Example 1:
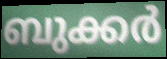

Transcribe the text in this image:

ബുക്കർ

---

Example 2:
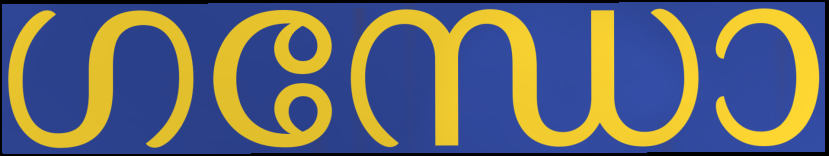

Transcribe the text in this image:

ഗന്ധോ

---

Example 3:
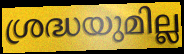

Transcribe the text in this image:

ശ്രദ്ധയുമില്ല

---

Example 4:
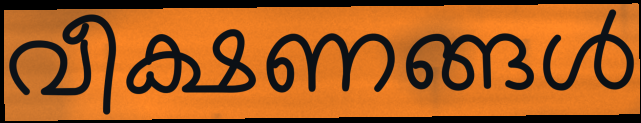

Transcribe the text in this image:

വീക്ഷണങ്ങൾ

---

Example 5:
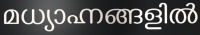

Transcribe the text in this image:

മധ്യാഹ്നങ്ങളിൽ